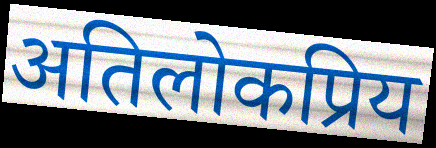
अतिलोकप्रिय